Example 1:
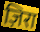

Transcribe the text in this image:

ज़िरा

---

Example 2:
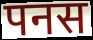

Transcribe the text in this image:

पनस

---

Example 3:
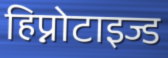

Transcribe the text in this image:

हिप्नोटाइज्ड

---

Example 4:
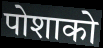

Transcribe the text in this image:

पोशाको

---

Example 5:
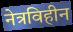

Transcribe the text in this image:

नेत्रविहीन